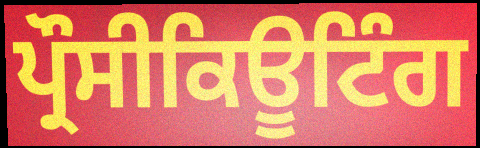
ਪ੍ਰੌਸੀਕਿਊਟਿੰਗ